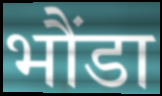
भौंडा